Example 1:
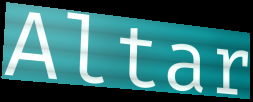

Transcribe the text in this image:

Altar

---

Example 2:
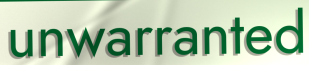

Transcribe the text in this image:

unwarranted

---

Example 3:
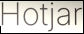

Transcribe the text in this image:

Hotjar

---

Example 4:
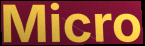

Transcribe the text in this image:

Micro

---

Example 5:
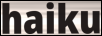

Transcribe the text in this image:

haiku